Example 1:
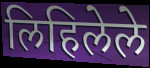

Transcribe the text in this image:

लिहिलेले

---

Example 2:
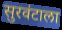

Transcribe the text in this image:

सुरवंटाला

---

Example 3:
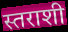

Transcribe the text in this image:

स्तराशी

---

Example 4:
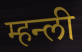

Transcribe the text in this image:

म्हन्ली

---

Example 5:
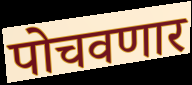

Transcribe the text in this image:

पोचवणार